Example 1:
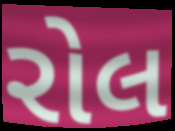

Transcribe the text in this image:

રોલ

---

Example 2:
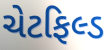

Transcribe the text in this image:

ચેટફિલ્ડ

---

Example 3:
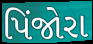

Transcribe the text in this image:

પિંજોરા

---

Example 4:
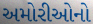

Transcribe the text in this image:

અમોરીઓનો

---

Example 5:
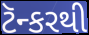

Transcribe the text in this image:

ટૅન્કરથી